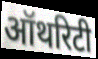
ऑथरिटी